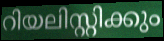
റിയലിസ്റ്റിക്കും